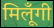
मिलूँगी